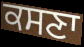
ਕਸਣਾ